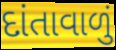
દાંતાવાળું